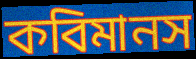
কবিমানস